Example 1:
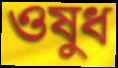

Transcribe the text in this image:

ওষুধ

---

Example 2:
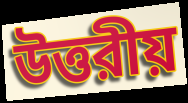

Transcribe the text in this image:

উত্তরীয়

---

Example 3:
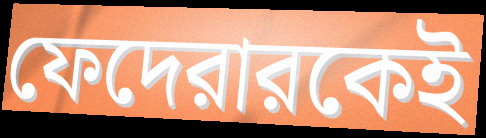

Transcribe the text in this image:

ফেদেরারকেই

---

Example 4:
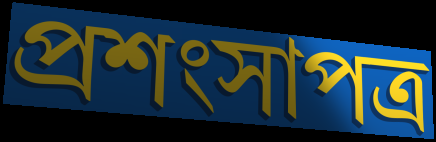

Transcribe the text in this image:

প্রশংসাপত্র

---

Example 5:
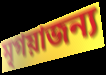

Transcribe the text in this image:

মৃগয়াজন্য